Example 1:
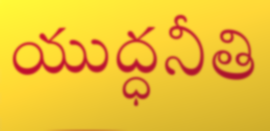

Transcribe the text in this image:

యుద్ధనీతి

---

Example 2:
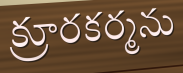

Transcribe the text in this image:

క్రూరకర్మను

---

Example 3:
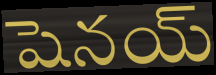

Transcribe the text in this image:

షెనయ్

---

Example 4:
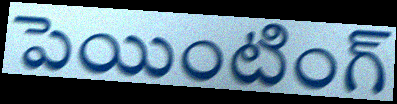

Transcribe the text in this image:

పెయింటింగ్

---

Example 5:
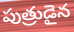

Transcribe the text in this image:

పుత్రుడైన